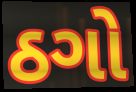
ઠગો